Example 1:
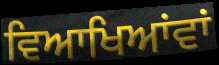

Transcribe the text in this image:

ਵਿਆਖਿਆਂਵਾਂ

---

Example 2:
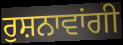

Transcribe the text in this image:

ਰੁਸ਼ਨਾਵਾਂਗੀ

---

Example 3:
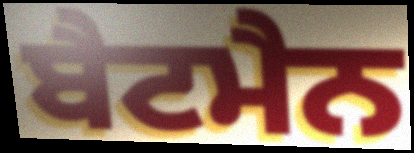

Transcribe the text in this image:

ਬੈਟਮੈਨ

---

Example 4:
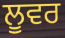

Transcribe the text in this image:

ਲੂਵਰ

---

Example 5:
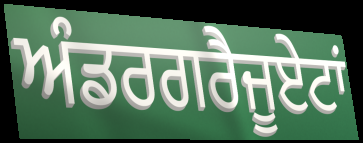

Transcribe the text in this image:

ਅੰਡਰਗਰੈਜੂਏਟਾਂ